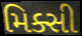
મિક્સી